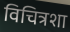
विचित्रशा